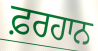
ਫ਼ਰਹਾਨ